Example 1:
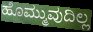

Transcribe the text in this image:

ಹೊಮ್ಮುವುದಿಲ್ಲ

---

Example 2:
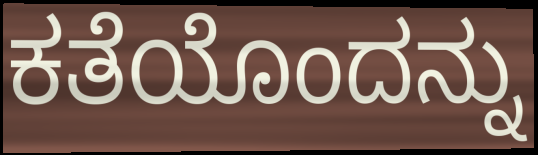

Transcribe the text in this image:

ಕತೆಯೊಂದನ್ನು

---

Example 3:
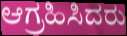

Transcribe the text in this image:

ಆಗ್ರಹಿಸಿದರು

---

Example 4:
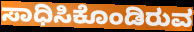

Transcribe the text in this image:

ಸಾಧಿಸಿಕೊಂಡಿರುವ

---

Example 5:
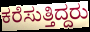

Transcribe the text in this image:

ಕರೆಸುತ್ತಿದ್ದರು